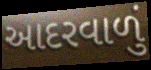
આદરવાળું